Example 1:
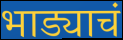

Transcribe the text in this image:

भाड्याचं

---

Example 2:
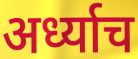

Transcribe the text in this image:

अर्ध्याच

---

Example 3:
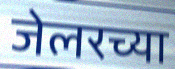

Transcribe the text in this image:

जेलरच्या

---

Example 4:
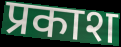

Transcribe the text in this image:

प्रकाश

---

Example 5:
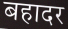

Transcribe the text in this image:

बहादर